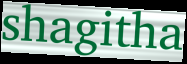
shagitha